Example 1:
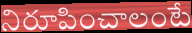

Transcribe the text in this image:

నిరూపించాలంటే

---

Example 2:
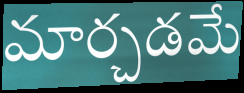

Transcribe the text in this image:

మార్చడమే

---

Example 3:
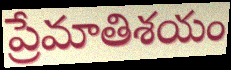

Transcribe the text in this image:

ప్రేమాతిశయం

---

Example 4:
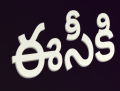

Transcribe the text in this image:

ఈసీకి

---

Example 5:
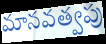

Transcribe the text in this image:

మానవత్వపు